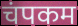
चंपकम